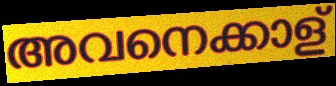
അവനെക്കാള്